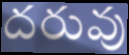
దరువు